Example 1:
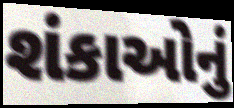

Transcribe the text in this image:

શંકાઓનું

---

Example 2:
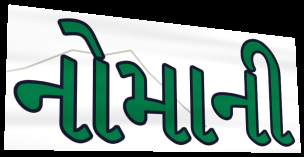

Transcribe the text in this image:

નોમાની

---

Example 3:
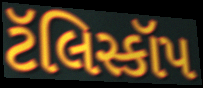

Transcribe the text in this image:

ટૅલિસ્કૉપ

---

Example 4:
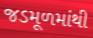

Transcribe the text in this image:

જડમૂળમાંથી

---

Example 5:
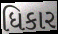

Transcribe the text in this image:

ધિકાર